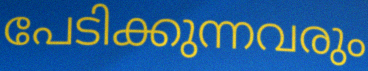
പേടിക്കുന്നവരും